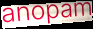
anopam